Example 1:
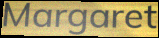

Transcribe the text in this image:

Margaret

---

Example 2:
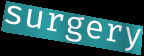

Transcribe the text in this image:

surgery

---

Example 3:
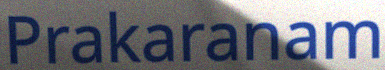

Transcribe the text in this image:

Prakaranam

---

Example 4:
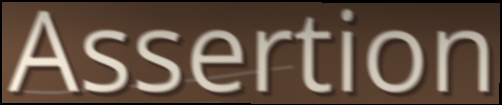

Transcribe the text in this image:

Assertion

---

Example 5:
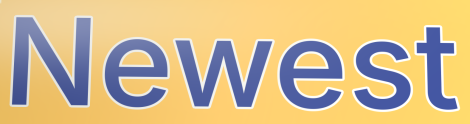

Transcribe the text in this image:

Newest